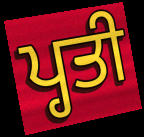
ਪ੍ਹਤੀ